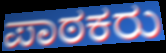
ಪಾಠಕರು